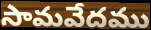
సామవేదము